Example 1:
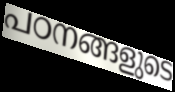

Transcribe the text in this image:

പഠനങ്ങളുടെ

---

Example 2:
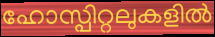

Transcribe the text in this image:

ഹോസ്പിറ്റലുകളിൽ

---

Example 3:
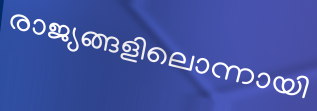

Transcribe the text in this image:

രാജ്യങ്ങളിലൊന്നായി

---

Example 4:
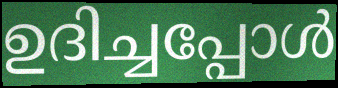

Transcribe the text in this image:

ഉദിച്ചപ്പോൾ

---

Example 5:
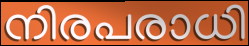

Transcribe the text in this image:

നിരപരാധി